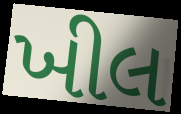
ખીલ